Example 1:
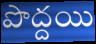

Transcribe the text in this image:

పొద్దయి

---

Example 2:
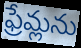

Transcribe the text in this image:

ఫ్రేమ్లను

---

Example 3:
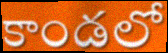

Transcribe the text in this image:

కాండలో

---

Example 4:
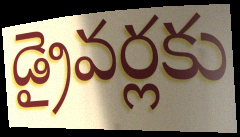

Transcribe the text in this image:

డ్రైవర్లకు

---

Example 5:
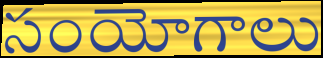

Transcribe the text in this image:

సంయోగాలు